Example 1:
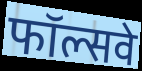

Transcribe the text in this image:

फॉल्सवे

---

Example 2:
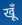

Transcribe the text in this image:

खूँ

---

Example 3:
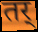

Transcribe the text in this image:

तर्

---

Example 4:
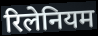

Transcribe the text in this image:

रिलेनियम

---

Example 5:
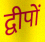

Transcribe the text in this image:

द्वीपों